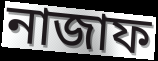
নাজাফ